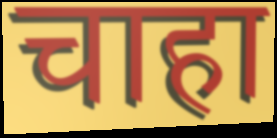
चाहा